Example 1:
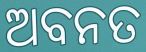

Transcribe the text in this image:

ଅବନତ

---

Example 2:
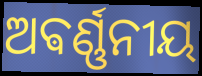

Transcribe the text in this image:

ଅଵର୍ଣ୍ଣନୀୟ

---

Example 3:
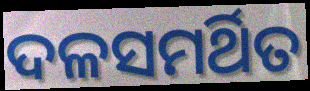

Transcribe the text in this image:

ଦଳସମର୍ଥିତ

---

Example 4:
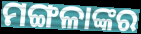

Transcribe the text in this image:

ମଙ୍ଗଳାଙ୍କର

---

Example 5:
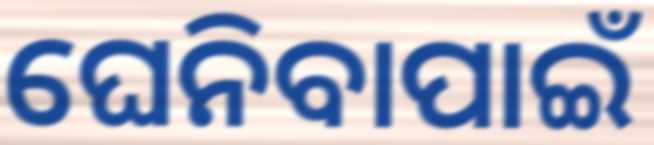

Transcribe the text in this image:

ଘେନିବାପାଇଁ